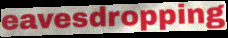
eavesdropping